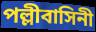
পল্লীবাসিনী